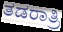
ತಡರಾತ್ರಿ